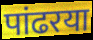
पांढरया